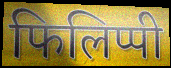
फिलिप्पी